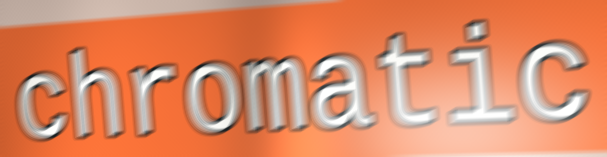
chromatic